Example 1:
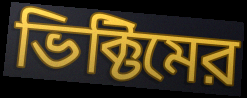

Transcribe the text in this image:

ভিক্টিমের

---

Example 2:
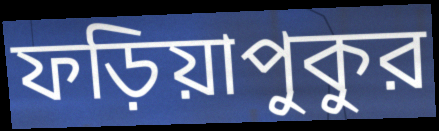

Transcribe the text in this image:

ফড়িয়াপুকুর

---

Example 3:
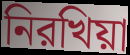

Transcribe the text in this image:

নিরখিয়া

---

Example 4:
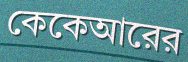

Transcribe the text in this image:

কেকেআরের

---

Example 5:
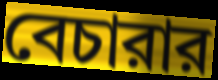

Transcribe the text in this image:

বেচারার